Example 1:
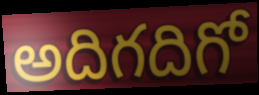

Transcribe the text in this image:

అదిగదిగో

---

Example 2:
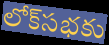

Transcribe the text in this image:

లోక్‌సభకు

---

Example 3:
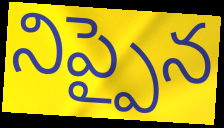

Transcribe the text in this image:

నిప్పైన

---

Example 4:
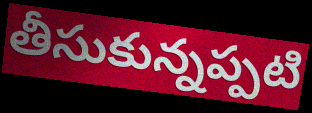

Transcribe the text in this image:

తీసుకున్నప్పటి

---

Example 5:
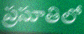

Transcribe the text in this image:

ప్రసూతిలో